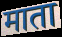
माता